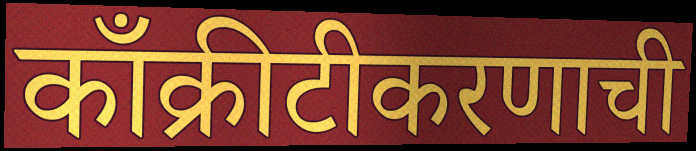
काँक्रीटीकरणाची